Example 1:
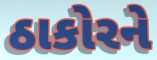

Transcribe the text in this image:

ઠાકોરને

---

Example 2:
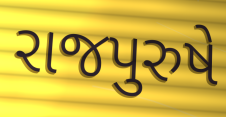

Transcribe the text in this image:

રાજપુરુષે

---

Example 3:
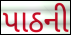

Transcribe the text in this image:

પાઠની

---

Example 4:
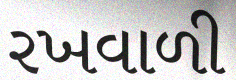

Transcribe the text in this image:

રખવાળી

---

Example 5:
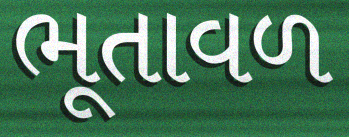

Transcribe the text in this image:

ભૂતાવળ